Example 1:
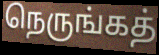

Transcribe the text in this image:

நெருங்கத்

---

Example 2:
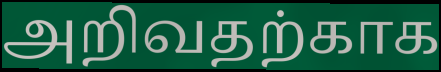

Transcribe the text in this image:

அறிவதற்காக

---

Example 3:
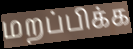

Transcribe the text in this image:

மறப்பிக்க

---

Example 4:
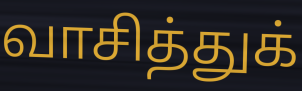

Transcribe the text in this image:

வாசித்துக்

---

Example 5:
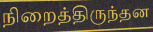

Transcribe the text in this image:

நிறைத்திருந்தன